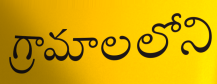
గ్రామాలలోని